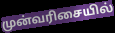
முன்வரிசையில்